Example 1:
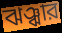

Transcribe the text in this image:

ঝঞ্ঝার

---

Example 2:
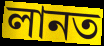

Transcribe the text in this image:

লানত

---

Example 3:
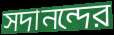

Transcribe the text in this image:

সদানন্দের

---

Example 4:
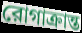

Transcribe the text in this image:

রোগাক্রান্ত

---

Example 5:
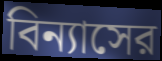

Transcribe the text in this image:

বিন্যাসের